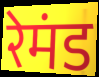
रेमंड